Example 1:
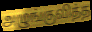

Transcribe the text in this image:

அழுங்குவித்த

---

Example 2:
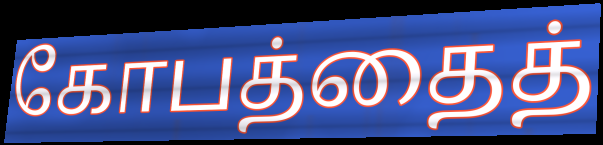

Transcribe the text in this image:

கோபத்தைத்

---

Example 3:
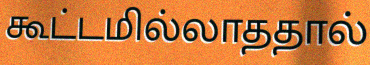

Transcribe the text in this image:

கூட்டமில்லாததால்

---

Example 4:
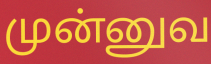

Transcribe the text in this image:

முன்னுவ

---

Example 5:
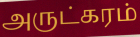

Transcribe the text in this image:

அருட்கரம்